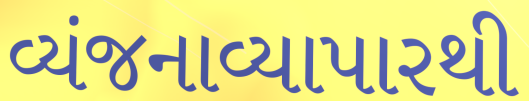
વ્યંજનાવ્યાપારથી